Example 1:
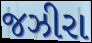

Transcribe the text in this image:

જઝીરા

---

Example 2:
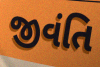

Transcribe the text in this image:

જીવંતિ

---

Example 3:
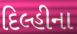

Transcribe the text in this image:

દિલ્હીના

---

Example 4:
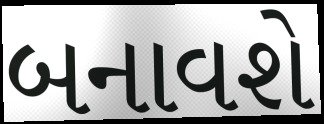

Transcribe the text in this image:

બનાવશે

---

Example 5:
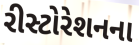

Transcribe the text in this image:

રીસ્ટોરેશનના